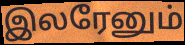
இலரேனும்